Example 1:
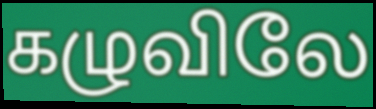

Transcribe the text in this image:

கழுவிலே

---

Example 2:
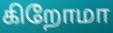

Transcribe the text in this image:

கிறோமா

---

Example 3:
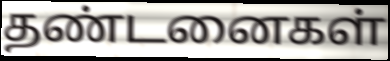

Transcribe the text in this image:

தண்டனைகள்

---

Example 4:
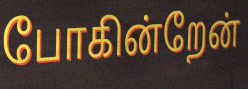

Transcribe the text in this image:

போகின்றேன்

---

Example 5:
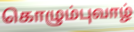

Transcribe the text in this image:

கொழும்புவாழ்